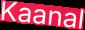
Kaanal